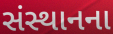
સંસ્થાનના